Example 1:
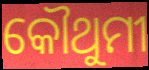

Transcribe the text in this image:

କୌଥୁମୀ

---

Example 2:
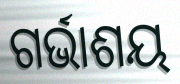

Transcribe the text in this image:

ଗର୍ଭାଶୟ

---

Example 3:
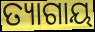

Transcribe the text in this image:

ତ୍ୟାଗାୟ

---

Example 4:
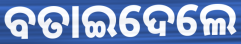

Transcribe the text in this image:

ବତାଇଦେଲେ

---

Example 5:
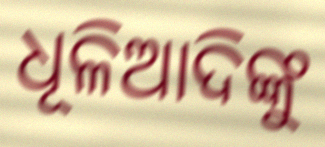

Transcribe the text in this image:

ଧୂଳିଆଦିଙ୍କୁ